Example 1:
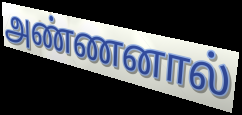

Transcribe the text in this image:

அண்ணனால்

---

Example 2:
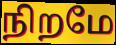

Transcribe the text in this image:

நிறமே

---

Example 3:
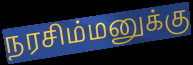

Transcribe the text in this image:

நரசிம்மனுக்கு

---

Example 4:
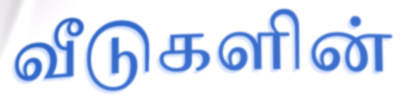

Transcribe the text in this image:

வீடுகளின்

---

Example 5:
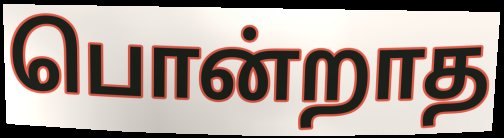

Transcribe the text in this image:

பொன்றாத